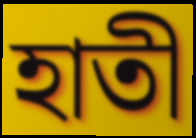
হাতী